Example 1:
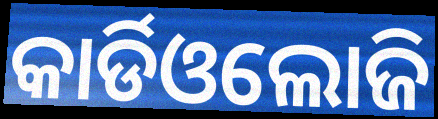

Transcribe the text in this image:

କାର୍ଡିଓଲୋଜି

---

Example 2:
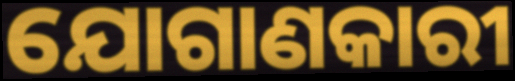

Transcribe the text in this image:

ଯୋଗାଣକାରୀ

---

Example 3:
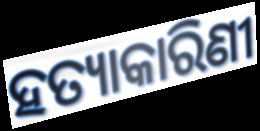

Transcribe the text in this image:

ହତ୍ୟାକାରିଣୀ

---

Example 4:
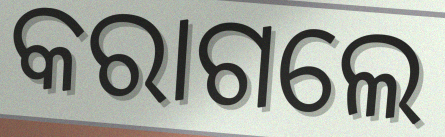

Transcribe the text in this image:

କରାଗଲେ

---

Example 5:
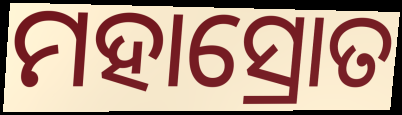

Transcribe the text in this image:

ମହାସ୍ରୋତ